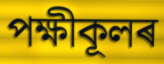
পক্ষীকূলৰ